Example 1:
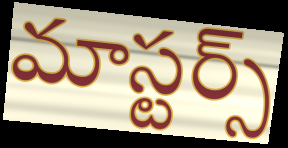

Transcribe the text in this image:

మాస్టర్స్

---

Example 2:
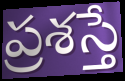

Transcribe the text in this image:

ప్రశస్తే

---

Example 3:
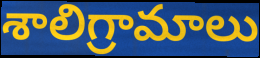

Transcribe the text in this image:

శాలిగ్రామాలు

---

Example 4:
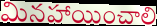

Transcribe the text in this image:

మినహాయించాలి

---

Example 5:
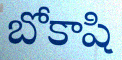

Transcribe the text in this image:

బోకాషి